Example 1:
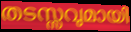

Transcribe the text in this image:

തടസ്സവുമായി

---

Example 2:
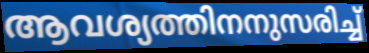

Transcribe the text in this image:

ആവശ്യത്തിനനുസരിച്ച്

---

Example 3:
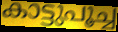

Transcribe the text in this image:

കാട്ടുപൂച്ച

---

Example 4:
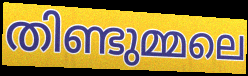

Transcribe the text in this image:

തിണ്ടുമ്മലെ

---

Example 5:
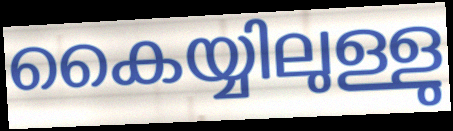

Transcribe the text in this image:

കൈയ്യിലുള്ളു